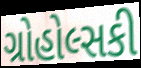
ગ્રોહોલ્સકી